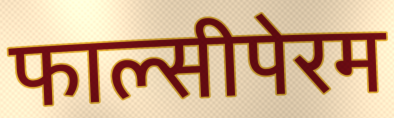
फाल्सीपेरम